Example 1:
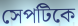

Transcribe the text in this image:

সেপটিকে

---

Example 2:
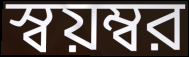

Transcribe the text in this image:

স্বয়ম্বর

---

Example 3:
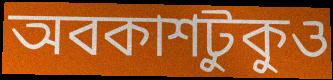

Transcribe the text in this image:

অবকাশটুকুও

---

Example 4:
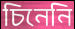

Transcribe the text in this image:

চিনেনি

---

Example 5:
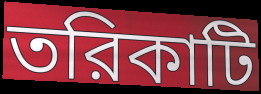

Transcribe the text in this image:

তরিকাটি